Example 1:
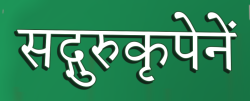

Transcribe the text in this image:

सद्गुरुकृपेनें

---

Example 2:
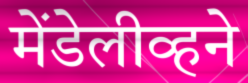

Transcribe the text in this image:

मेंडेलीव्हने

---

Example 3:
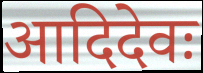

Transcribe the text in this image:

आदिदेवः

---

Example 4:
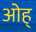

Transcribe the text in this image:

ओह्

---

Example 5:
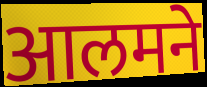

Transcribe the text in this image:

आलमने